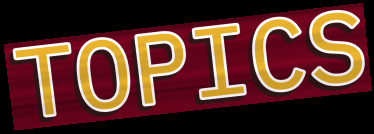
TOPICS